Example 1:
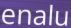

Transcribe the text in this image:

enalu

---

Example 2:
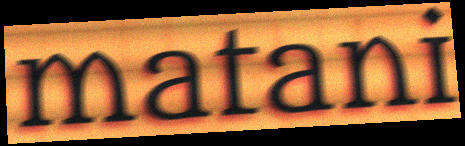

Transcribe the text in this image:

matani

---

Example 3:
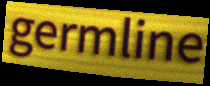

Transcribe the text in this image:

germline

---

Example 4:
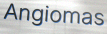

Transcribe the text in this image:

Angiomas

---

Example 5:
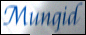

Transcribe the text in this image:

Munqid